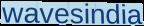
wavesindia